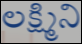
లక్ష్మిని